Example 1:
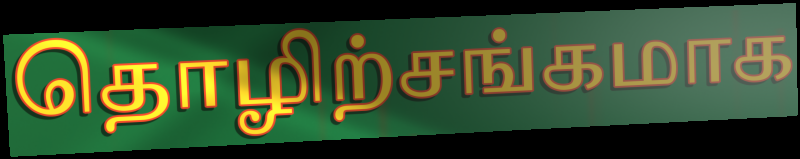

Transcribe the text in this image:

தொழிற்சங்கமாக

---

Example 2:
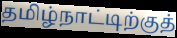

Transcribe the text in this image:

தமிழ்நாட்டிற்குத்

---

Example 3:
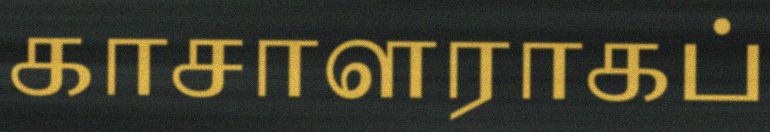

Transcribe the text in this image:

காசாளராகப்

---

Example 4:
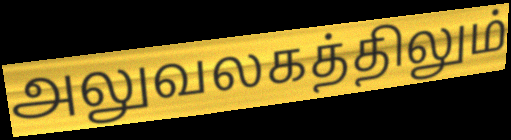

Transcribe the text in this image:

அலுவலகத்திலும்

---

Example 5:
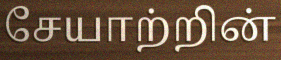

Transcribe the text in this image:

சேயாற்றின்